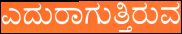
ಎದುರಾಗುತ್ತಿರುವ